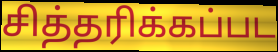
சித்தரிக்கப்பட